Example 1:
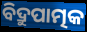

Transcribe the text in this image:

ବିଦ୍ରୁପାତ୍ମକ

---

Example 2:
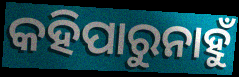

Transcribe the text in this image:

କହିପାରୁନାହୁଁ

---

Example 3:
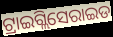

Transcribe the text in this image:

ଟ୍ରାଇଗ୍ଲିସେରାଇଡ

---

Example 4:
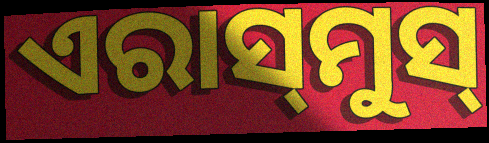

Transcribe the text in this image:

ଏରାସ୍‍ମୁସ୍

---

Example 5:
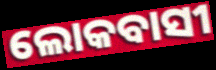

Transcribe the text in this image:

ଲୋକବାସୀ